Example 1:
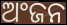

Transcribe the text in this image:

ଅଂଜନ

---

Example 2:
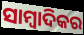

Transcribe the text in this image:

ସାମ୍ବାଦିକର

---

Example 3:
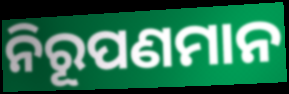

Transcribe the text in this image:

ନିରୂପଣମାନ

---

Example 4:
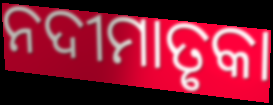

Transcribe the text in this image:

ନଦୀମାତୃକା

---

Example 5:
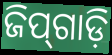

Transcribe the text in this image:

ଜିପ୍‌ଗାଡ଼ି